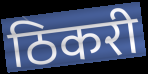
ठिकरी